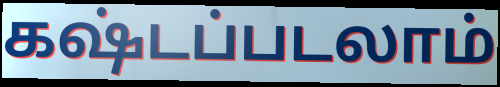
கஷ்டப்படலாம்